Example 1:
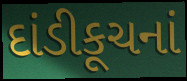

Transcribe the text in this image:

દાંડીકૂચનાં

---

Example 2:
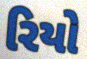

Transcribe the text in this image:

રિયો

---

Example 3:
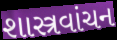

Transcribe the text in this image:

શાસ્ત્રવાંચન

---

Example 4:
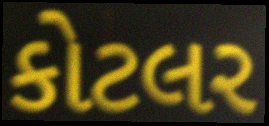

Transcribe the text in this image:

કોટલર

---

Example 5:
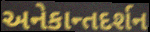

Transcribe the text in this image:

અનેકાન્તદર્શન